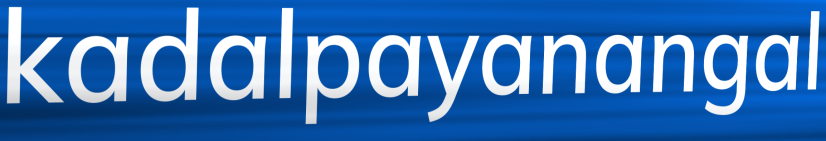
kadalpayanangal